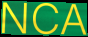
NCA